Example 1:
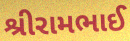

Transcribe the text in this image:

શ્રીરામભાઈ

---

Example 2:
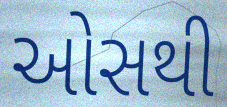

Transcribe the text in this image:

ઓસથી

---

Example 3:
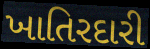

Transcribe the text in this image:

ખાતિરદારી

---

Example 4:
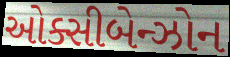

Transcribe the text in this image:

ઓક્સીબેન્ઝોન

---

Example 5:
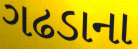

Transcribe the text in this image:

ગઢડાના